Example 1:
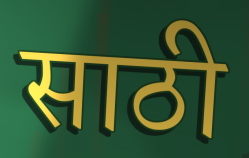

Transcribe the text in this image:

साठी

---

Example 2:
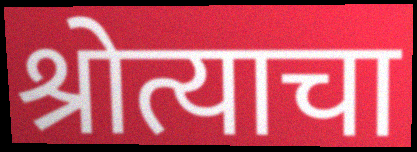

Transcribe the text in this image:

श्रोत्याचा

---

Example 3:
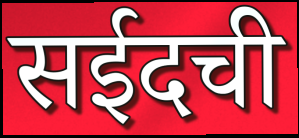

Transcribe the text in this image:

सईदची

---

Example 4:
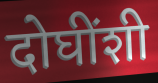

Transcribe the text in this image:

दोघींशी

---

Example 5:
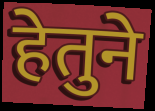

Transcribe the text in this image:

हेतुने